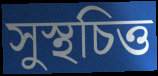
সুস্থচিত্ত